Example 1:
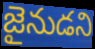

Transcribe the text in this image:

జైనుడని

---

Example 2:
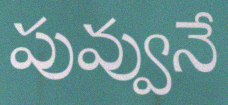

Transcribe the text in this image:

పువ్వునే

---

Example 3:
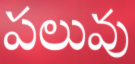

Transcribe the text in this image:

పలువు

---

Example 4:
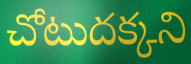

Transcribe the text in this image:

చోటుదక్కని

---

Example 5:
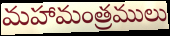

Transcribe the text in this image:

మహామంత్రములు